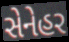
સેનેહર